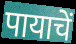
पायाचें